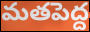
మతపెద్ద